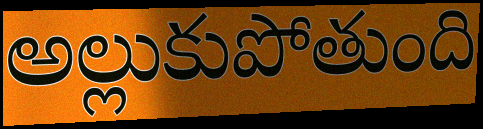
అల్లుకుపోతుంది